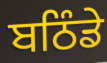
ਬਠਿੰਡੇ